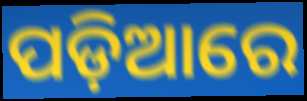
ପଡ଼ିଆରେ